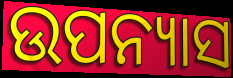
ଉପନ୍ୟାସ